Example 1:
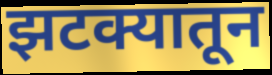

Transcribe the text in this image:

झटक्यातून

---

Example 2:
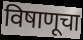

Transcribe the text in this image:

विषाणूचा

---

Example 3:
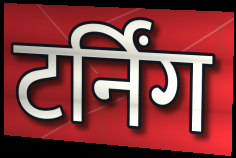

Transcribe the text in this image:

टर्निंग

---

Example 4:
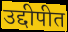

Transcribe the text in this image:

उद्दीपीत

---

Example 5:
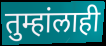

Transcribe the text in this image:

तुम्हांलाही